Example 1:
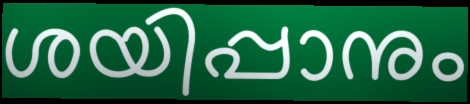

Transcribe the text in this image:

ശയിപ്പാനും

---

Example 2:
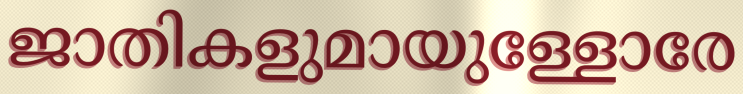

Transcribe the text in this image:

ജാതികളുമായുള്ളോരേ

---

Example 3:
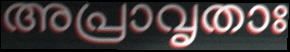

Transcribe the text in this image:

അപ്രാവൃതാഃ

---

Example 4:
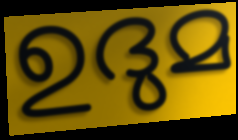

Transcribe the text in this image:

ഉദുമ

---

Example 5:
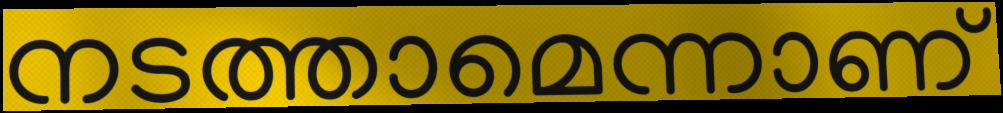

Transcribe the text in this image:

നടത്താമെന്നാണ്